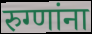
रुग्णांना